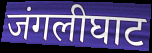
जंगलीघाट